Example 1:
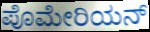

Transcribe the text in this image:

ಪೊಮೇರಿಯನ್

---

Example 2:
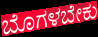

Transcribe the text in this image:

ಬೊಗಳಬೇಕು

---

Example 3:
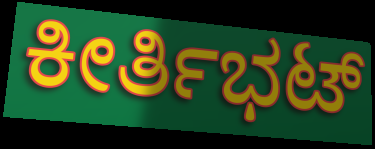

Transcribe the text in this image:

ಕೀರ್ತಿಭಟ್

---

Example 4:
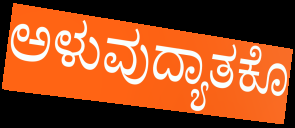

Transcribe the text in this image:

ಅಳುವುದ್ಯಾತಕೊ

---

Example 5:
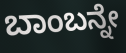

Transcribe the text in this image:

ಬಾಂಬನ್ನೇ